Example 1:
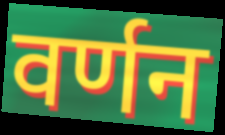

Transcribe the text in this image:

वर्णन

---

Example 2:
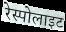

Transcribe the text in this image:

रेस्पोलाइट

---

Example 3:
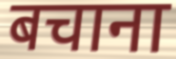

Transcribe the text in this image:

बचाना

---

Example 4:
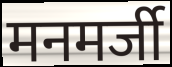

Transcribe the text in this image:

मनमर्जी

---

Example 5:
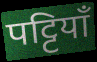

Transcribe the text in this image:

पट्टियाँ